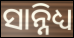
ସାନ୍ନିଧ୍ୟ